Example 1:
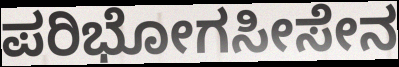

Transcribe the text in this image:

ಪರಿಭೋಗಸೀಸೇನ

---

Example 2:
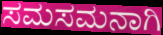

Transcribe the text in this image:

ಸಮಸಮನಾಗಿ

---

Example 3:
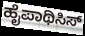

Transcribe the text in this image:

ಹೈಪಾಥಿಸಿಸ್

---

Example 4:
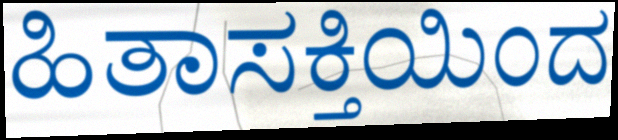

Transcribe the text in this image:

ಹಿತಾಸಕ್ತಿಯಿಂದ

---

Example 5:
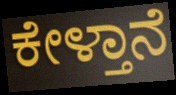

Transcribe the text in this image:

ಕೇಳ್ತಾನೆ